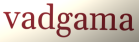
vadgama